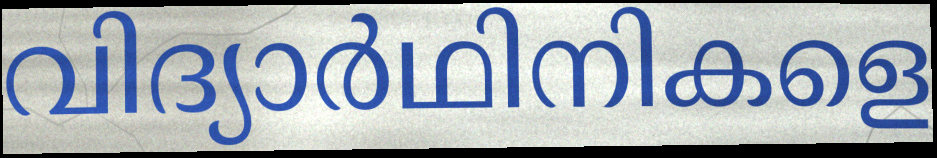
വിദ്യാർഥിനികളെ